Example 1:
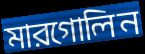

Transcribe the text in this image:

মারগোলিন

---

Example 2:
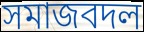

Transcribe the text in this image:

সমাজবদল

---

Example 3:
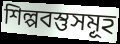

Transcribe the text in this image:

শিল্পবস্তুসমূহ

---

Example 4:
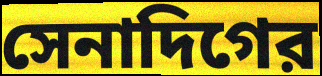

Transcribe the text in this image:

সেনাদিগের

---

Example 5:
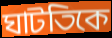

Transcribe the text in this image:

ঘাটতিকে